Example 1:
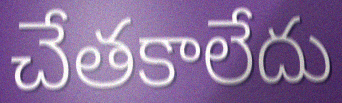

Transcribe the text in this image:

చేతకాలేదు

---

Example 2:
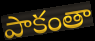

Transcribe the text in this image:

పాకంతా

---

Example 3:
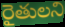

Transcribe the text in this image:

రైతులని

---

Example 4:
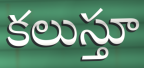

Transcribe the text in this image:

కలుస్తూ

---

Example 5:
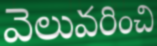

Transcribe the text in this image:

వెలువరించి